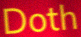
Doth